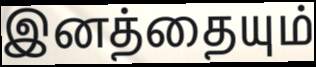
இனத்தையும்